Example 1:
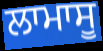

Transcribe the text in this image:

ਲਾਮਾਸੂ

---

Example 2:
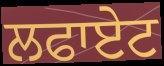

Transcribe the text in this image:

ਲਫਾਏਟ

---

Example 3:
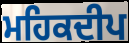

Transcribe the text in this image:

ਮਹਿਕਦੀਪ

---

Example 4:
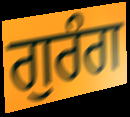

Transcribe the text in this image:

ਗੁਰੰਗ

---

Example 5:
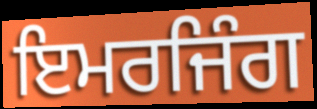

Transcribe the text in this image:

ਇਮਰਜਿੰਗ